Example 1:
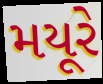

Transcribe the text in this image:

મયૂરે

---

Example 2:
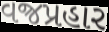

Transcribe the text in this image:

વજ્રપ્રહાર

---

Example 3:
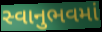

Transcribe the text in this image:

સ્વાનુભવમાં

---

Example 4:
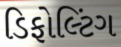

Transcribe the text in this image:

ડિફોલ્ટિંગ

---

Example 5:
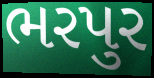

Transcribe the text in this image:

ભરપુર